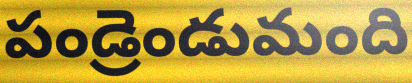
పండ్రెండుమంది